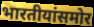
भारतीयांसमोर